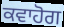
ਕਵਾਹੋਗ